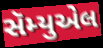
સૅમ્યુએલ